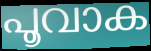
പൂവാക